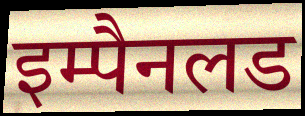
इम्पैनलड